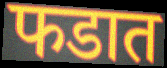
फडात